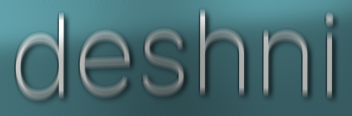
deshni